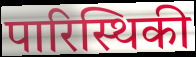
पारिस्थिकी